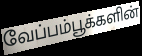
வேப்பம்பூக்களின்